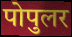
पोपुलर